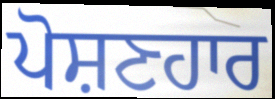
ਪੋਸ਼ਣਹਾਰ